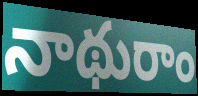
నాథురాం